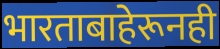
भारताबाहेरूनही